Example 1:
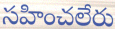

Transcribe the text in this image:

సహించలేరు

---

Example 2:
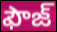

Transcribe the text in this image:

ఫౌజ్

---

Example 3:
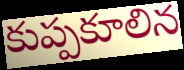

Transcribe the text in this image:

కుప్పకూలిన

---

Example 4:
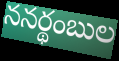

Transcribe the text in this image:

ననర్థంబుల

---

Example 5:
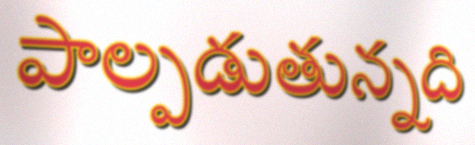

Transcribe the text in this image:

పాల్పడుతున్నది